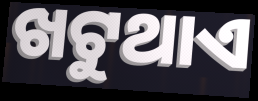
ଖଟୁଥାଏ